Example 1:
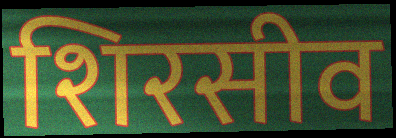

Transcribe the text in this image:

शिरसीव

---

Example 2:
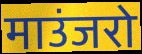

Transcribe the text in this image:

माउंजरो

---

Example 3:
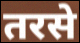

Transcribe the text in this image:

तरसे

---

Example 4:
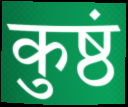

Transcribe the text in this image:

कुष्ठं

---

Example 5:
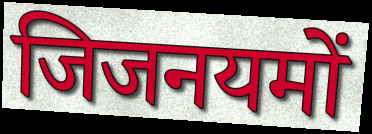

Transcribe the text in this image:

जिजनयमों